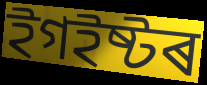
ইগইষ্টৰ